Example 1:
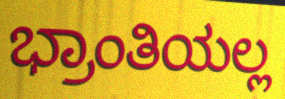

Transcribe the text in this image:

ಭ್ರಾಂತಿಯಲ್ಲ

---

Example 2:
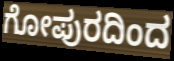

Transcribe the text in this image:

ಗೋಪುರದಿಂದ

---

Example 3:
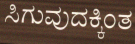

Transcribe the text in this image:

ಸಿಗುವುದಕ್ಕಿಂತ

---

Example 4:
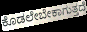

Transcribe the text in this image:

ಕೊಡಲೇಬೇಕಾಗುತ್ತದೆ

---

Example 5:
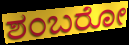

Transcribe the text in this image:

ಶಂಬರೋ